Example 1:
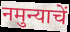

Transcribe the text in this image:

नमुन्याचें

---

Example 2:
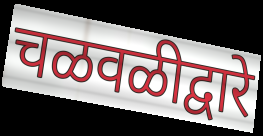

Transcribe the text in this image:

चळवळीद्वारे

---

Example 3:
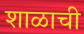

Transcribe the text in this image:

शाळाची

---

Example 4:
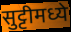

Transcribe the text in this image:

सुट्टीमध्ये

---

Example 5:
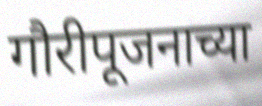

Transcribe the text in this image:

गौरीपूजनाच्या